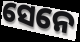
ସେନେ